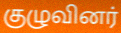
குழுவினர்